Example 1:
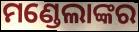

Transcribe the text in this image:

ମଣ୍ଡେଲାଙ୍କର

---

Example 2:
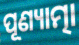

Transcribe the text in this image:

ପୂଣ୍ୟାତ୍ମା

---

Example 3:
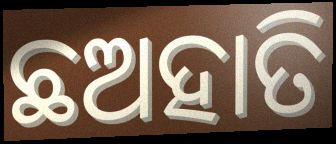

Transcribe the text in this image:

ଛଅହାତି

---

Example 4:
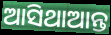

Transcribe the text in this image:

ଆସିଥାଆନ୍ତ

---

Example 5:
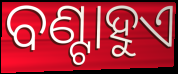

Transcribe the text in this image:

ବଣ୍ଟାହୁଏ